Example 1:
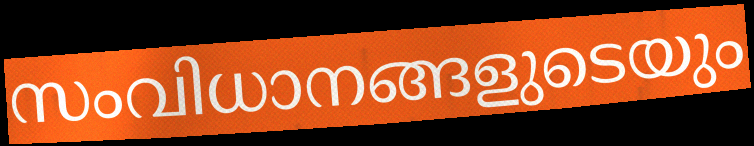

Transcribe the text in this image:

സംവിധാനങ്ങളുടെയും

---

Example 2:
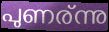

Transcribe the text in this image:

പുണര്ന്നു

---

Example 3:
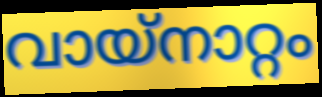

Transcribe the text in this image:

വായ്നാറ്റം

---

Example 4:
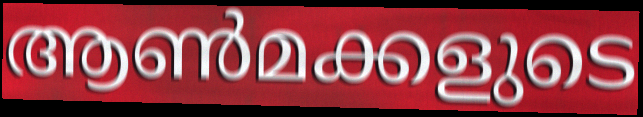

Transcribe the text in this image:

ആൺമക്കളുടെ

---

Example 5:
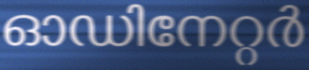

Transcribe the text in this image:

ഓഡിനേറ്റർ